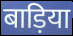
बाड़िया